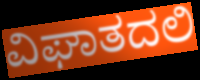
ವಿಘಾತದಲಿ